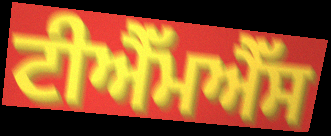
ਟੀਐੱਮਐੱਸ